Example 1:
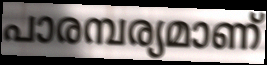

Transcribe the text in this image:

പാരമ്പര്യമാണ്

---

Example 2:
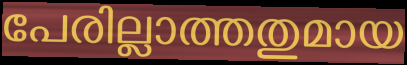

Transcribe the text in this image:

പേരില്ലാത്തതുമായ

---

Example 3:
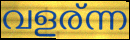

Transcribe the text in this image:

വളര്ന്ന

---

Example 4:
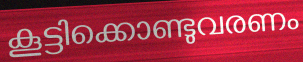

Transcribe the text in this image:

കൂട്ടിക്കൊണ്ടുവരണം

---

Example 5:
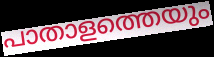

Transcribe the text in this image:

പാതാളത്തെയും